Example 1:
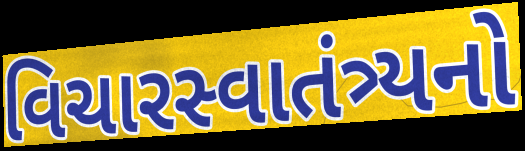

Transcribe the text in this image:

વિચારસ્વાતંત્ર્યનો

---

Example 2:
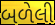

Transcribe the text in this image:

બળેલી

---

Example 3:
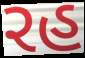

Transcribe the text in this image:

રહ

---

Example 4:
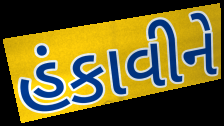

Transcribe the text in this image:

હંકાવીને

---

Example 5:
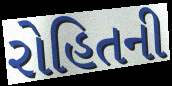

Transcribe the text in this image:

રોહિતની